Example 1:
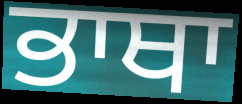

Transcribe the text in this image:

ਭਾਥਾ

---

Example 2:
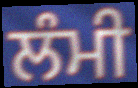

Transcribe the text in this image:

ਲੰਮੀ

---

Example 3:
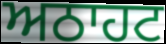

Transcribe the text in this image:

ਅਠਾਹਟ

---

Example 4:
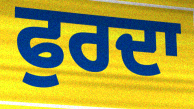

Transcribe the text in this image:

ਫੁਰਦਾ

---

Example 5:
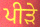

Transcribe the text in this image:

ਪੀੜੇ